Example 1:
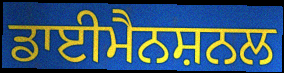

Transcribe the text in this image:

ਡਾਈਮੈਨਸ਼ਨਲ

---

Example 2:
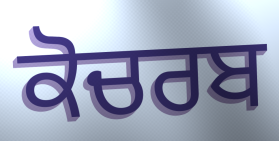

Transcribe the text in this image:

ਕੋਚਰਬ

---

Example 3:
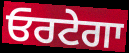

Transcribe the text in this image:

ਓਰਟੇਗਾ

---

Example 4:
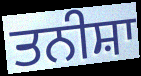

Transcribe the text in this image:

ਤਨੀਸ਼ਾ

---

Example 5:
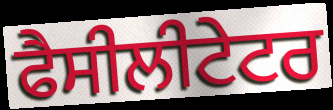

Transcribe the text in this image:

ਫੈਸੀਲੀਟੇਟਰ